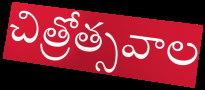
చిత్రోత్సవాల